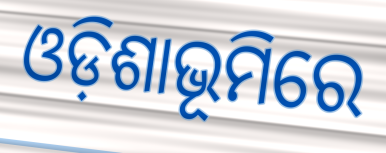
ଓଡ଼ିଶାଭୂମିରେ